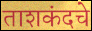
ताशकंदचे